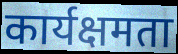
कार्यक्षमता